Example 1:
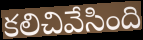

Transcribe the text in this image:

కలిచివేసింది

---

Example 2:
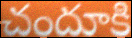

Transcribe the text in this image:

చందూకి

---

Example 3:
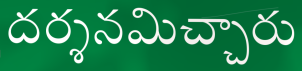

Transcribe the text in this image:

దర్శనమిచ్చారు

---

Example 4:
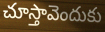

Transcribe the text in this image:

చూస్తావెందుకు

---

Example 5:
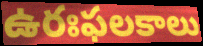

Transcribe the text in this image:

ఉరఃఫలకాలు